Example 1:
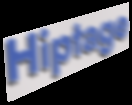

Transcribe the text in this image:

Hiptage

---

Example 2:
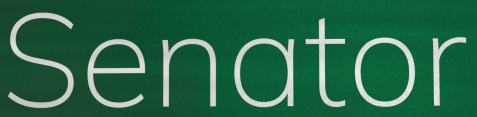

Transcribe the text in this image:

Senator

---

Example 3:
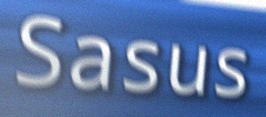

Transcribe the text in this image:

Sasus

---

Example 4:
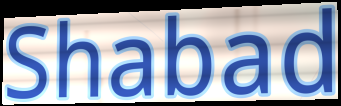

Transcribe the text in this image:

Shabad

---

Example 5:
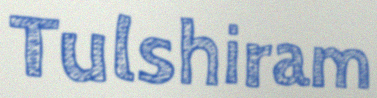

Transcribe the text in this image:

Tulshiram